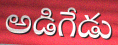
అడిగేడు